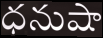
ధనుషా